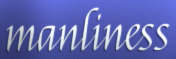
manliness